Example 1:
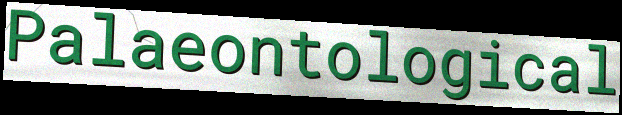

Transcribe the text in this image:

Palaeontological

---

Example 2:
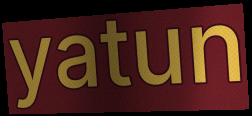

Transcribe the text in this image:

yatun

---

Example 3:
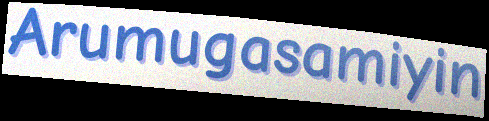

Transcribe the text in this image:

Arumugasamiyin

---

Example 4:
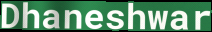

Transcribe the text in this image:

Dhaneshwar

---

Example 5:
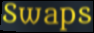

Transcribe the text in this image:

Swaps